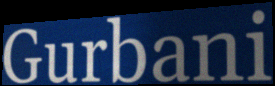
Gurbani